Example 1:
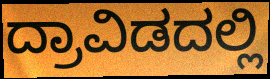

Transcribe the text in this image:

ದ್ರಾವಿಡದಲ್ಲಿ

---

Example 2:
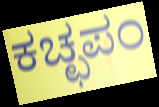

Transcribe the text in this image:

ಕಚ್ಛಪಂ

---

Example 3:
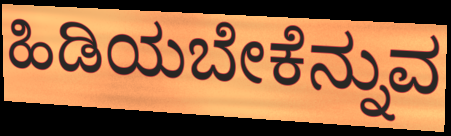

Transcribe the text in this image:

ಹಿಡಿಯಬೇಕೆನ್ನುವ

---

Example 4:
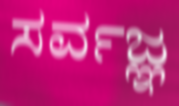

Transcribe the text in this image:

ಸರ್ವಜ್ಞ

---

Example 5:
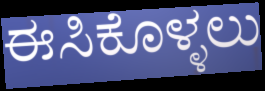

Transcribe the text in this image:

ಈಸಿಕೊಳ್ಳಲು